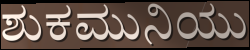
ಶುಕಮುನಿಯು